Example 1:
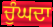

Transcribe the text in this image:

ਚੁੰਘਦਾ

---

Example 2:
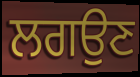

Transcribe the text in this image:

ਲਗਉਣ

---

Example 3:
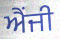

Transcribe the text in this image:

ਐਂਜੀ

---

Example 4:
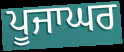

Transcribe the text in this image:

ਪੂਜਾਘਰ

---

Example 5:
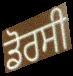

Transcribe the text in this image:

ਡੋਰਸੀ